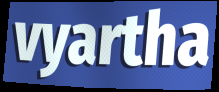
vyartha